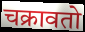
चक्रावतो